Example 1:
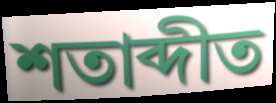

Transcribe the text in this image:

শতাব্দীত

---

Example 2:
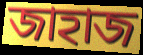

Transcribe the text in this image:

জাহাজ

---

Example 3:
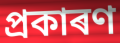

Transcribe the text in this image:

প্ৰকাৰণ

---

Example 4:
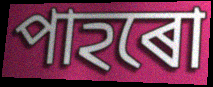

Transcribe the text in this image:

পাহৰো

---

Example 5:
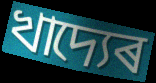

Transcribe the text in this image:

খাদ্যেৰ